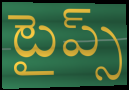
టైప్స్